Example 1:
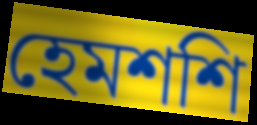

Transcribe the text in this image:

হেমশশি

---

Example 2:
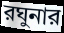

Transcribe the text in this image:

রঘুনার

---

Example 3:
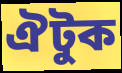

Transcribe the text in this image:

ঐটুক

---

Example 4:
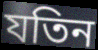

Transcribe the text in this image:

যতিন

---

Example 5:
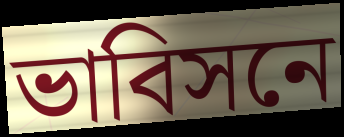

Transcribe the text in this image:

ভাবিসনে